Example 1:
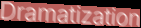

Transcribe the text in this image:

Dramatization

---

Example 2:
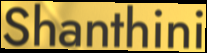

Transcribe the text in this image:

Shanthini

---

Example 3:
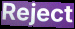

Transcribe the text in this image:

Reject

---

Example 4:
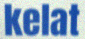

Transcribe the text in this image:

kelat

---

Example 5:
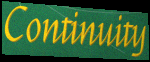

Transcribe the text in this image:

Continuity